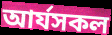
আৰ্যসকল